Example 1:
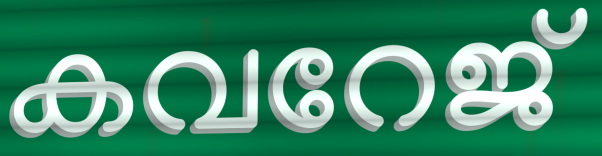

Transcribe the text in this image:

കവറേജ്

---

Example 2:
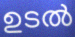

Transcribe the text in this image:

ഉടൽ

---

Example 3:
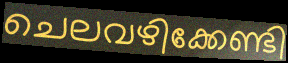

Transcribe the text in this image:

ചെലവഴിക്കേണ്ടി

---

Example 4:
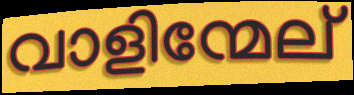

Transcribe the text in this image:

വാളിന്മേല്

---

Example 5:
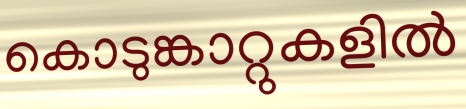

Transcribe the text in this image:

കൊടുങ്കാറ്റുകളിൽ